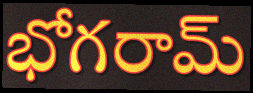
భోగరామ్